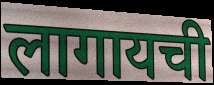
लागायची